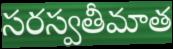
సరస్వతీమాత